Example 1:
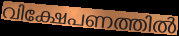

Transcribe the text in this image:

വിക്ഷേപണത്തിൽ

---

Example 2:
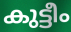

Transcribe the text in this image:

കുട്ടീം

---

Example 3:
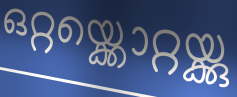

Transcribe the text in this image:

ഒറ്റയ്ക്കൊറ്റയ്ക്കു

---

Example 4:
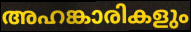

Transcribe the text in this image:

അഹങ്കാരികളും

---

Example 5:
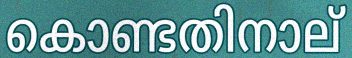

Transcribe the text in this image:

കൊണ്ടതിനാല്